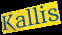
Kallis